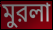
মুরলা